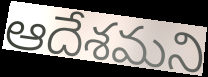
ఆదేశమని